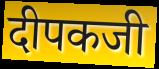
दीपकजी